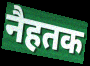
नैहतक